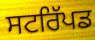
ਸਟਰਿੱਪਡ